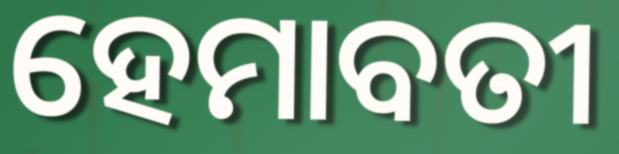
ହେମାବତୀ